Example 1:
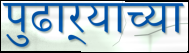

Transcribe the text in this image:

पुढार्याच्या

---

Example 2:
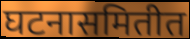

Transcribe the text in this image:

घटनासमितीत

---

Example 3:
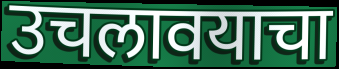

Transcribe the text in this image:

उचलावयाचा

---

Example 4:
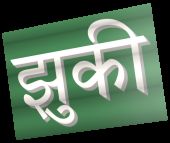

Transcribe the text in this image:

झुकी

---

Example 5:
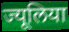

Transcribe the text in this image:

ज्यूलिया